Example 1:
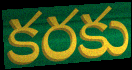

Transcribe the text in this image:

కరకు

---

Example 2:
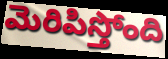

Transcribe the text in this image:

మెరిపిస్తోంది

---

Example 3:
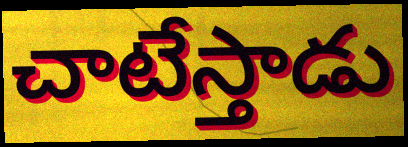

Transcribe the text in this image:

చాటేస్తాడు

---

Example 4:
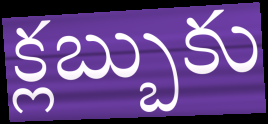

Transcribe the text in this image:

క్లబ్బుకు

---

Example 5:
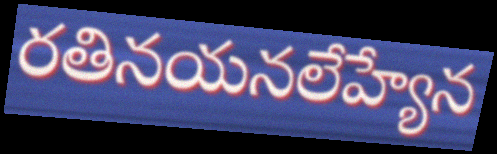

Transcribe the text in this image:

రతినయనలేహ్యేన